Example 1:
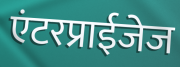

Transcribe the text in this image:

एंटरप्राईजेज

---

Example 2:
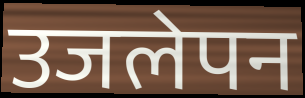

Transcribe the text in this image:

उजलेपन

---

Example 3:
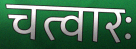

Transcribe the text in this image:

चत्वारः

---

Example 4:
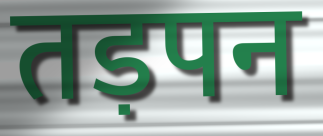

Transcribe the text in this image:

तड़पन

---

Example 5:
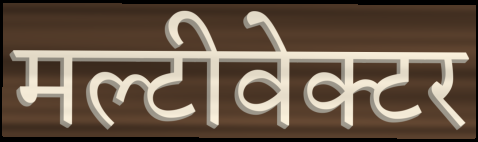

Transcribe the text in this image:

मल्टीवेक्टर